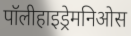
पॉलीहाइड्रेमनिओस